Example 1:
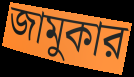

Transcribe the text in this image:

জামুকার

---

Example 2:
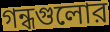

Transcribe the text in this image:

গন্ধগুলোর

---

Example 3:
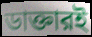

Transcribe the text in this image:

ডাক্তারই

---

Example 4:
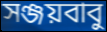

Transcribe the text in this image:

সঞ্জয়বাবু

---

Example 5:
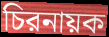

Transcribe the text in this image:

চিরনায়ক